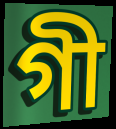
গী